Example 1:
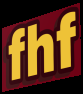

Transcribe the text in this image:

fhf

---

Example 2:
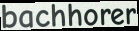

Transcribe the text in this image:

bachhorer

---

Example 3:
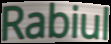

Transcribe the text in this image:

Rabiul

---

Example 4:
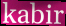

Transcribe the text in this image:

kabir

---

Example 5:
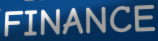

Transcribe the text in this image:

FINANCE